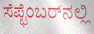
ಸೆಪ್ಟೆಂಬರ್‌ನಲ್ಲಿ